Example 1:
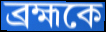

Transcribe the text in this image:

ব্রহ্মকে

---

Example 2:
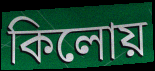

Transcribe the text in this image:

কিলোয়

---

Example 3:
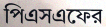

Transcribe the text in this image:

পিএসএফের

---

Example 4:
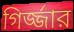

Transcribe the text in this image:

গির্জ্জার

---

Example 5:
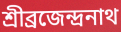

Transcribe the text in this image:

শ্রীব্রজেন্দ্রনাথ